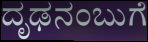
ದೃಢನಂಬುಗೆ